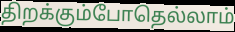
திறக்கும்போதெல்லாம்